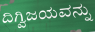
ದಿಗ್ವಿಜಯವನ್ನು